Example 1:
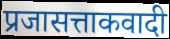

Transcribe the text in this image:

प्रजासत्ताकवादी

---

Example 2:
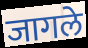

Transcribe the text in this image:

जागले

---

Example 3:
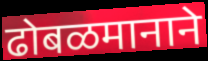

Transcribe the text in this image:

ढोबळमानाने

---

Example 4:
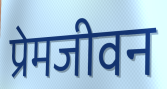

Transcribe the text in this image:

प्रेमजीवन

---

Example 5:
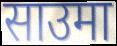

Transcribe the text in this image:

साउमा